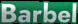
Barbel